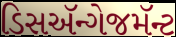
ડિસઍન્ગેજમૅન્ટ